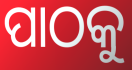
ପାଠକୁ